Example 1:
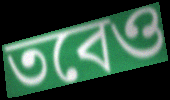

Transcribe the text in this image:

তবেও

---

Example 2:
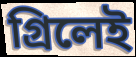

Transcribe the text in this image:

গ্রিলেই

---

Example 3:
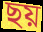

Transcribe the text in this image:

ছয়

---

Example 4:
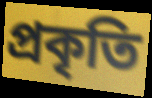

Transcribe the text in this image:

প্রকৃতি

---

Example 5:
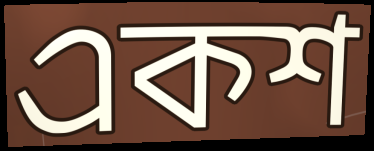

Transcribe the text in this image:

একশ